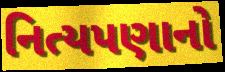
નિત્યપણાનો